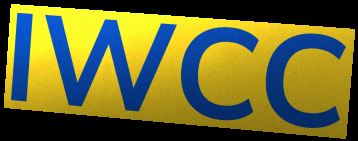
IWCC